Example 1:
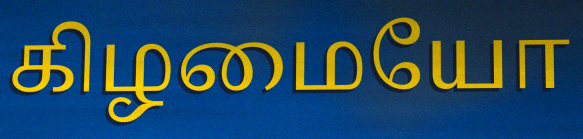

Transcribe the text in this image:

கிழமையோ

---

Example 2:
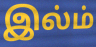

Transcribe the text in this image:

இல்ம்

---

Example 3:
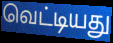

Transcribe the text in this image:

வெட்டியது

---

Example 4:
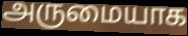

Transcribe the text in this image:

அருமையாக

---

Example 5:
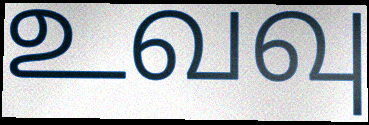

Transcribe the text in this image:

உவவு